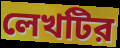
লেখটির